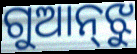
ଗୁଆନ୍‌ଝୁ